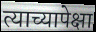
त्याच्यापेक्षा